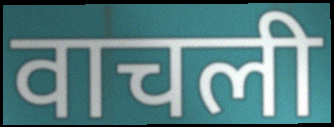
वाचली